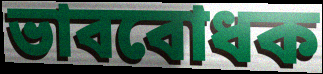
ভাববোধক